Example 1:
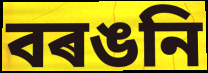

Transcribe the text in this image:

বৰঙনি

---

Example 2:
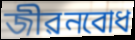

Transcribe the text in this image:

জীৱনবোধ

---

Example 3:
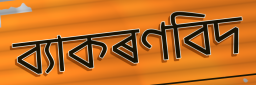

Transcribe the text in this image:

ব্যাকৰণবিদ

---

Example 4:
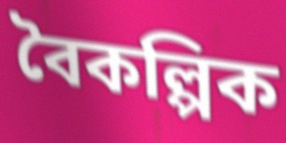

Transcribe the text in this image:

বৈকল্পিক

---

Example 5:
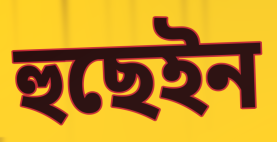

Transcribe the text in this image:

হুছেইন